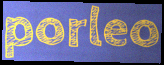
porleo